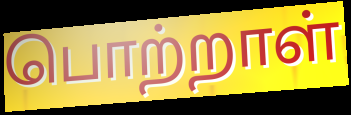
பொற்றாள்